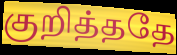
குறித்ததே